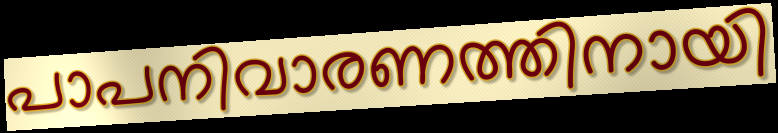
പാപനിവാരണത്തിനായി